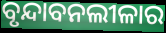
ବୃନ୍ଦାବନଲୀଳାର